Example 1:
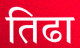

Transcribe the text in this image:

तिढा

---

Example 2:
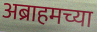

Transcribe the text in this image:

अब्राहमच्या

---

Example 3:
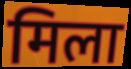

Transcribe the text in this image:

मिला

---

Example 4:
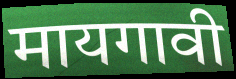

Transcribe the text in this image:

मायगावी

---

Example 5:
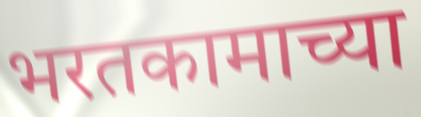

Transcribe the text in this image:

भरतकामाच्या